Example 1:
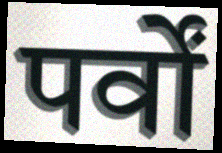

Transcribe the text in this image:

पर्वों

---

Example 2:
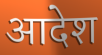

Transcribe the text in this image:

आदेश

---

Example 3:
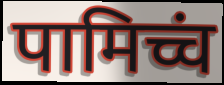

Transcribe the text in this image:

पामिच्चं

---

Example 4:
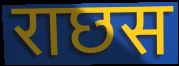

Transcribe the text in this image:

राछस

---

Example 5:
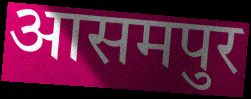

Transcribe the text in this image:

आसमपुर